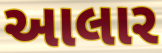
આલાર